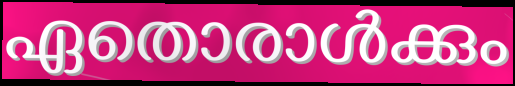
ഏതൊരാൾക്കും